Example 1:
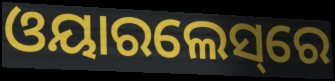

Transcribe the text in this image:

ଓୟାରଲେସ୍‌ରେ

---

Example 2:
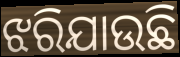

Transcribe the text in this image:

ଝରିଯାଉଛି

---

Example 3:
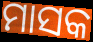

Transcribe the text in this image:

ମାସକ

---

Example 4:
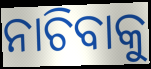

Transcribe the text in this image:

ନାଚିବାକୁ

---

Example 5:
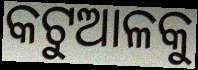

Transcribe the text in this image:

କଟୁଆଳକୁ